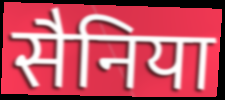
सैनिया